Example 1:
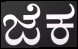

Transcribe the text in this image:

ಜೆಕ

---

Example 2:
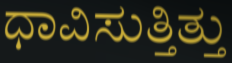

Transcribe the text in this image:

ಧಾವಿಸುತ್ತಿತ್ತು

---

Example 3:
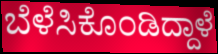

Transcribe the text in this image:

ಬೆಳೆಸಿಕೊಂಡಿದ್ದಾಳೆ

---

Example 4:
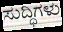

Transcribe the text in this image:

ಸುದ್ಧಿಗಳು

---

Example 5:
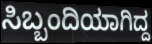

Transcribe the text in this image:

ಸಿಬ್ಬಂದಿಯಾಗಿದ್ದ